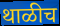
थाळीच